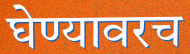
घेण्यावरच